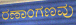
ರಣಾಂಗಣವು